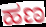
ಹಣ